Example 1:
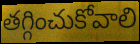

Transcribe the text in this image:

తగ్గించుకోవాలి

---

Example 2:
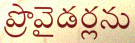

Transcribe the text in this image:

ప్రొవైడర్లను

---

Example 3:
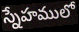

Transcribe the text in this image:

స్నేహములో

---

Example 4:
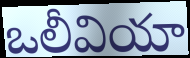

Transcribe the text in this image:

ఒలీవియా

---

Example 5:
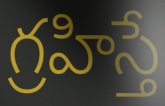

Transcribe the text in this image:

గ్రహిస్తే